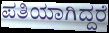
ಪತಿಯಾಗಿದ್ದರೆ